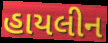
હાયલીન